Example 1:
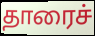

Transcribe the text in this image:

தாரைச்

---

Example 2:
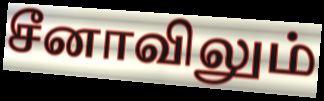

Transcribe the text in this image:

சீனாவிலும்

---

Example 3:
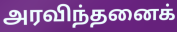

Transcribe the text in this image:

அரவிந்தனைக்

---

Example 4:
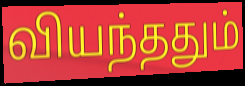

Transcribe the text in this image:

வியந்ததும்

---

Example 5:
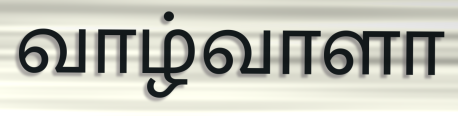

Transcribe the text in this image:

வாழ்வாளா